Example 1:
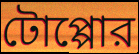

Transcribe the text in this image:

টোপ্পোর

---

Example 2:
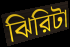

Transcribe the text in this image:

ঝিরিটা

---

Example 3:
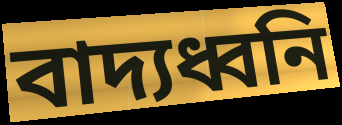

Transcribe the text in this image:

বাদ্যধ্বনি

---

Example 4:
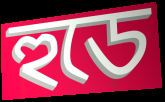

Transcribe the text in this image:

হুডে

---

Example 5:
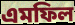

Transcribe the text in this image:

এমফিল